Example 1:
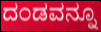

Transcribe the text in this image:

ದಂಡವನ್ನೂ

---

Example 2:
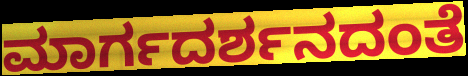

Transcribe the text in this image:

ಮಾರ್ಗದರ್ಶನದಂತೆ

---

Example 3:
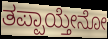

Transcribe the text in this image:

ತಪ್ಪಾಯ್ತೇನೋ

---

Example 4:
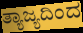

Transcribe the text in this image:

ತ್ಯಾಜ್ಯದಿಂದ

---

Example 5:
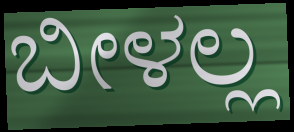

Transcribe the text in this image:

ಬೀಳಲ್ಲ